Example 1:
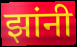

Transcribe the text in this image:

झांनी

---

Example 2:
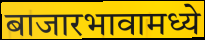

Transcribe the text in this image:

बाजारभावामध्ये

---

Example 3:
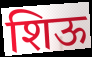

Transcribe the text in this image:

शिऊ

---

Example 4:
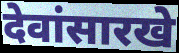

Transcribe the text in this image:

देवांसारखे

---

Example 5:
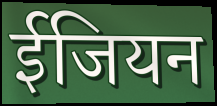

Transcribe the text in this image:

ईजियन